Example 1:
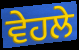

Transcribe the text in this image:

ਵੇਹਲੇ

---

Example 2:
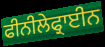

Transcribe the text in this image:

ਫੀਨੀਲੇਫ੍ਰਾਈਨ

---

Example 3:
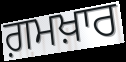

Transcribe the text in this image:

ਗ਼ਮਖ਼ਾਰ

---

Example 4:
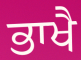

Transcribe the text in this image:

ਭਾਖੈ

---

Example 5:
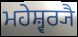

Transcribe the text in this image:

ਮਹੇਸ਼੍ਵਰ੍ਯੈ